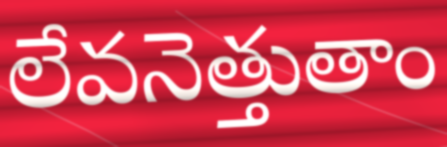
లేవనెత్తుతాం